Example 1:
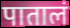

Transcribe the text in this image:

पातालं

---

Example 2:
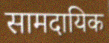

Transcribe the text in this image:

सामदायिक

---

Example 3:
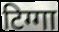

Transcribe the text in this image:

टिग्गा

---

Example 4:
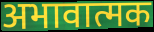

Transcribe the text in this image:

अभावात्मक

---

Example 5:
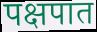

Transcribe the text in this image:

पक्षपात